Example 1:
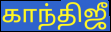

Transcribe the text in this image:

காந்திஜீ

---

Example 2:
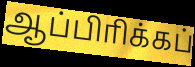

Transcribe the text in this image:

ஆப்பிரிக்கப்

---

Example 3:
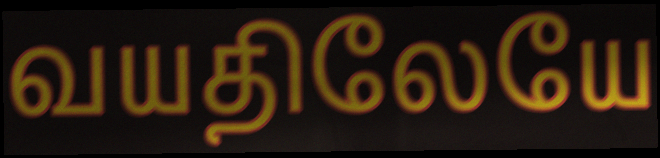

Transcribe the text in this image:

வயதிலேயே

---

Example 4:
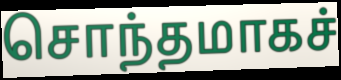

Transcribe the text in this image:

சொந்தமாகச்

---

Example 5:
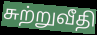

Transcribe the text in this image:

சுற்றுவீதி